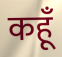
कहूँ